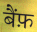
बैंफ़